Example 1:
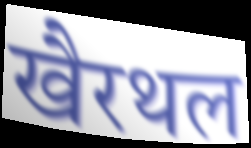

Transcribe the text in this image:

खैरथल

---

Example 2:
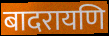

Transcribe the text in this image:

बादरायणि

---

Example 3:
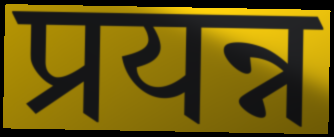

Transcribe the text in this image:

प्रयन्न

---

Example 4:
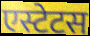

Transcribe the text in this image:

एस्टेटस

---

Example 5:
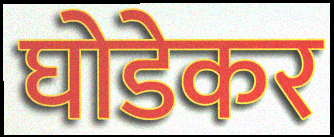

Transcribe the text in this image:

घोडेकर